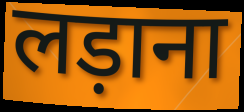
लड़ाना